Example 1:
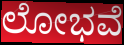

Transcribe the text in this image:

ಲೋಭವೆ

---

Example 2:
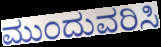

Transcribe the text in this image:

ಮುಂದುವರಿಸಿ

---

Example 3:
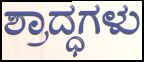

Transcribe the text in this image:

ಶ್ರಾದ್ಧಗಳು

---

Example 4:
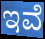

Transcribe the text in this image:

ಇವೆ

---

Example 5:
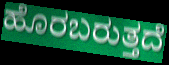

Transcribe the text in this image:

ಹೊರಬರುತ್ತದೆ